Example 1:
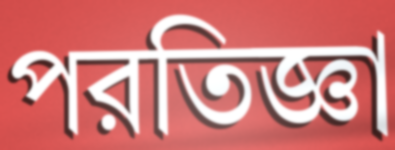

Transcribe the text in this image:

পরতিজ্ঞা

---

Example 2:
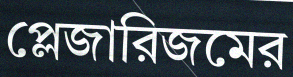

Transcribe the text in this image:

প্লেজারিজমের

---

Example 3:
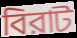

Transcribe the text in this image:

বিরাট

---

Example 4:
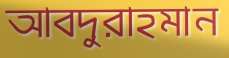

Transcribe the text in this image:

আবদুরাহমান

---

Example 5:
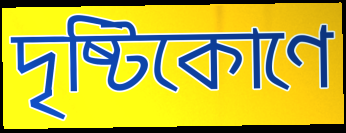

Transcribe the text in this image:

দৃষ্টিকোণে